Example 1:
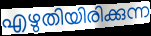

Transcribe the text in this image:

എഴുതിയിരിക്കുന്ന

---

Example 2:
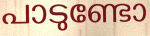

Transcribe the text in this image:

പാടുണ്ടോ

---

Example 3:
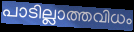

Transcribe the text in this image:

പാടില്ലാത്തവിധം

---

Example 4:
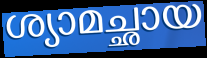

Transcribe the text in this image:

ശ്യാമച്ഛായ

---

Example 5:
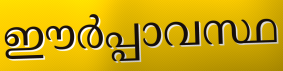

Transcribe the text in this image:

ഈർപ്പാവസ്ഥ